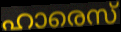
ഹാരെസ്